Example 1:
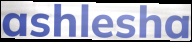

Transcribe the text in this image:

ashlesha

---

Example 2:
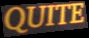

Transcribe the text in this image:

QUITE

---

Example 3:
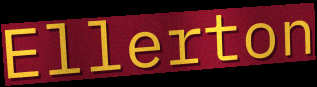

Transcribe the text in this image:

Ellerton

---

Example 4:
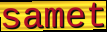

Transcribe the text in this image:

samet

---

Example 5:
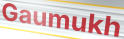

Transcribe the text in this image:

Gaumukh